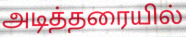
அடித்தரையில்